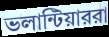
ভলান্টিয়াররা